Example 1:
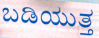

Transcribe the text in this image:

ಬಡಿಯುತ್ತ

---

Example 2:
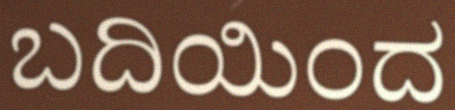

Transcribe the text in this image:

ಬದಿಯಿಂದ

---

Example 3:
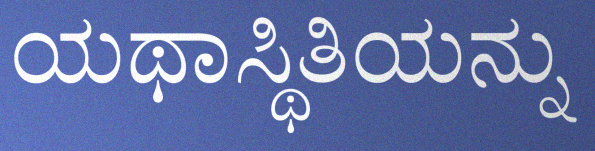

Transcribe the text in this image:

ಯಥಾಸ್ಥಿತಿಯನ್ನು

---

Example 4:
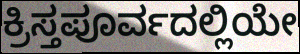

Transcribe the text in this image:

ಕ್ರಿಸ್ತಪೂರ್ವದಲ್ಲಿಯೇ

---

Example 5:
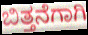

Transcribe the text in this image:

ಬಿತ್ತನೆಗಾಗಿ